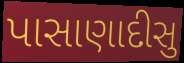
પાસાણાદીસુ